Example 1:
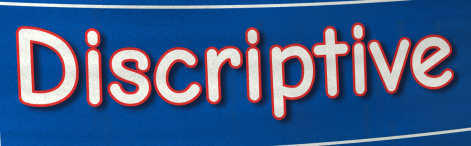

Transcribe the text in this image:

Discriptive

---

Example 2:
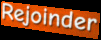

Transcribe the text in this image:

Rejoinder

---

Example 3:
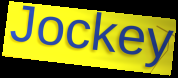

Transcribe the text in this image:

Jockey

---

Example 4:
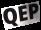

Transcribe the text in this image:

QEP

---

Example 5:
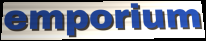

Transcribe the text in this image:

emporium